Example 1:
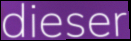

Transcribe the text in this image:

dieser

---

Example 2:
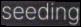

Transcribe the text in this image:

seeding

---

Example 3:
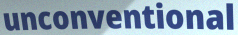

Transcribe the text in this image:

unconventional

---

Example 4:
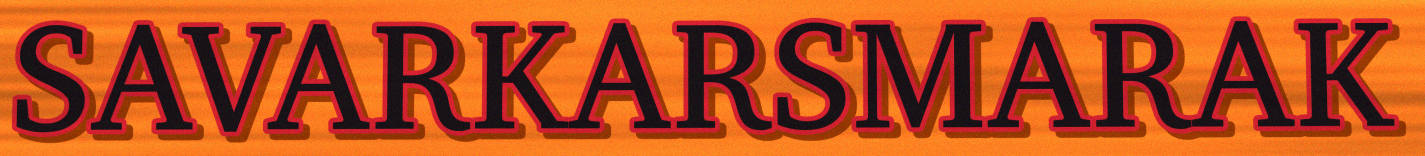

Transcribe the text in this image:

SAVARKARSMARAK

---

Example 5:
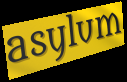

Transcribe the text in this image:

asylum